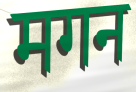
मगन